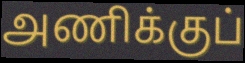
அணிக்குப்